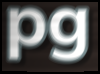
pg